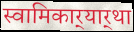
स्वामिकार्यार्था